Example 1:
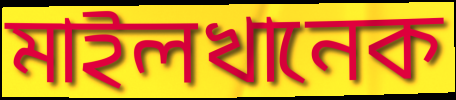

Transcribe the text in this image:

মাইলখানেক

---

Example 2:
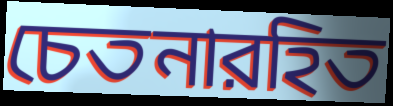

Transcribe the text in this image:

চেতনারহিত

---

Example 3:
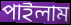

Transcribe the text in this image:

পাইলাম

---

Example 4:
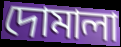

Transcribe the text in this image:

দোমালা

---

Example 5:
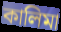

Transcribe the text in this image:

কালিমা